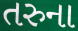
તરુના